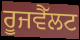
ਰੂਜਵੈੱਲਟ